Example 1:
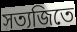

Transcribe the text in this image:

সত্যজিতে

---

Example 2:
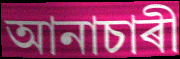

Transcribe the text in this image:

আনাচাৰী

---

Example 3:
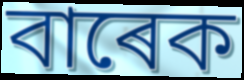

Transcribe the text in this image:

বাৰেক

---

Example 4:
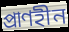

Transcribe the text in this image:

প্ৰাণহীন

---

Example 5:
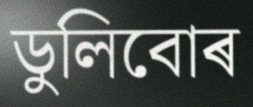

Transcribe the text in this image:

ডুলিবোৰ